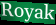
Royak